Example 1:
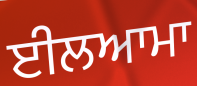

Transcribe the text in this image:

ਈਲਆਮਾ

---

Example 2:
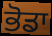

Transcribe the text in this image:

ਭੋਡਾ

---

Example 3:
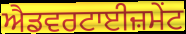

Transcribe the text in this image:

ਐਡਵਰਟਾਈਜ਼ਮੇਂਟ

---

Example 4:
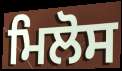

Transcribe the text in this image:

ਮਿਲੋਸ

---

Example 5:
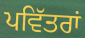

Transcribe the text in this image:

ਪਵਿੱਤਰਾਂ